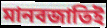
মানবজাতিই